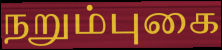
நறும்புகை